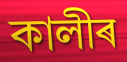
কালীৰ